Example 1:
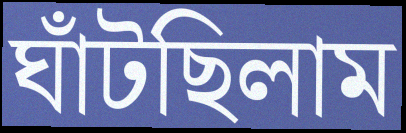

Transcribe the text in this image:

ঘাঁটছিলাম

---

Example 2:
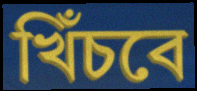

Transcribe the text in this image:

খিঁচবে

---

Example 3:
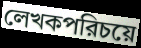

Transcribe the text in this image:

লেখকপরিচয়ে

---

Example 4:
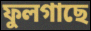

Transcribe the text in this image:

ফুলগাছে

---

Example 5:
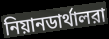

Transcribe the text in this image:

নিয়ানডার্থালরা